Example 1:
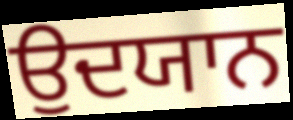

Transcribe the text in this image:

ਉਦਯਾਨ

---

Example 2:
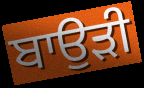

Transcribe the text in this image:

ਬਾਉੜੀ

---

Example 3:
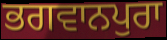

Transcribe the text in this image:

ਭਗਵਾਨਪੁਰਾ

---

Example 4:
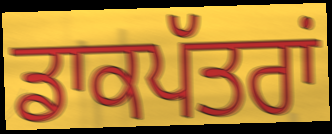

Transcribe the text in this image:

ਡਾਕਪੱਤਰਾਂ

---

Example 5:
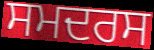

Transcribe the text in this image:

ਸਮਦਰਸ